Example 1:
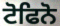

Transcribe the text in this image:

ਟੋਫਿਨੋ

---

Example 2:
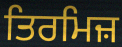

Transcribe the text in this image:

ਤਿਰਮਿਜ਼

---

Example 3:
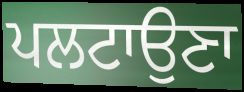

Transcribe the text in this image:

ਪਲਟਾਉਣਾ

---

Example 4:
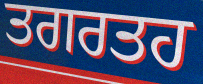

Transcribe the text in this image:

ਤਗਰਤਹ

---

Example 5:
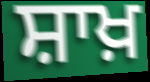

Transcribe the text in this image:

ਸ਼ਾਖ਼